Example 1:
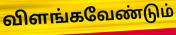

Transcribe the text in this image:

விளங்கவேண்டும்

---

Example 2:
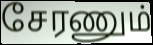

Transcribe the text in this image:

சேரணும்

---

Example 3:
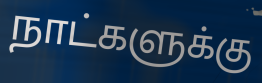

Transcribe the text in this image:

நாட்களுக்கு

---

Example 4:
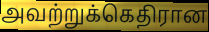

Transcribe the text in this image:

அவற்றுக்கெதிரான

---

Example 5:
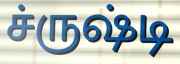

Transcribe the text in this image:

ச்ருஷ்டி